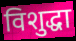
विशुद्धा